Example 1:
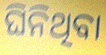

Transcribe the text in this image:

ଘିନିଥିବା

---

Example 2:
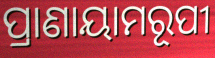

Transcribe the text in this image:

ପ୍ରାଣାୟାମରୂପୀ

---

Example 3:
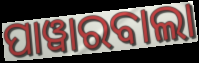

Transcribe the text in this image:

ପାୱାରବାଲା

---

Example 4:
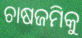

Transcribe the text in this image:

ଚାଷଜମିକୁ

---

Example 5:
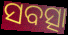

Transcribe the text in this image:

ସବତ୍ସା